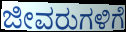
ಜೀವರುಗಳಿಗೆ